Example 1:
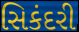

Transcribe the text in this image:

સિકંદરી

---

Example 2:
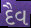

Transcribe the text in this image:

દૈવ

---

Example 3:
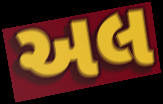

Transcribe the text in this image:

અલ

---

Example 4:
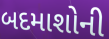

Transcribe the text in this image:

બદમાશોની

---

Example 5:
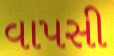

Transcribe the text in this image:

વાપસી